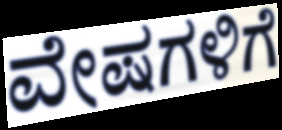
ವೇಷಗಳಿಗೆ